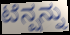
ಟೆನ್ಷನ್ನು